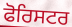
ਫੋਰਿਸਟਰ